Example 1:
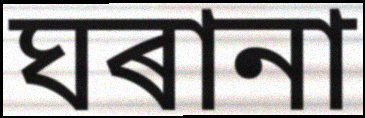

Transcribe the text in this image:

ঘৰানা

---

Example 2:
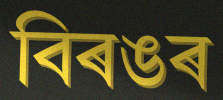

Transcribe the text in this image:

বিৰঙৰ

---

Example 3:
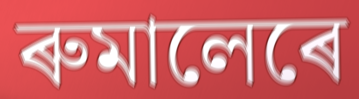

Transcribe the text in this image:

ৰুমালেৰে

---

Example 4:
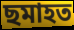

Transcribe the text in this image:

ছমাহত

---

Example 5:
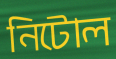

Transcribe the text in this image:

নিটোল